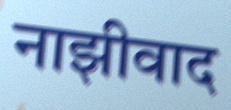
नाझीवाद